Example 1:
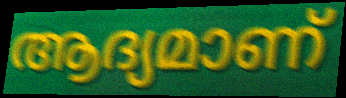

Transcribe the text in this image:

ആദ്യമാണ്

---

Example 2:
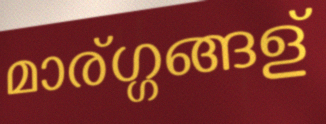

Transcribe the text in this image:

മാര്ഗ്ഗങ്ങള്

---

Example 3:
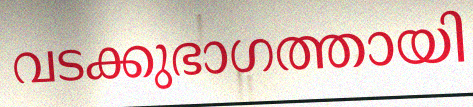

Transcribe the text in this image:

വടക്കുഭാഗത്തായി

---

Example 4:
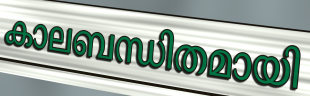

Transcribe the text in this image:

കാലബന്ധിതമായി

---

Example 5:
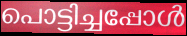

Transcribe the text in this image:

പൊട്ടിച്ചപ്പോൾ